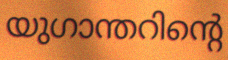
യുഗാന്തറിന്റെ